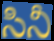
సినీ